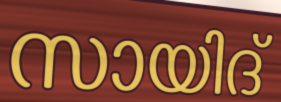
സായിദ്